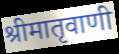
श्रीमातृवाणी